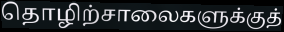
தொழிற்சாலைகளுக்குத்